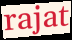
rajat